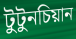
টুটুনচিয়ান